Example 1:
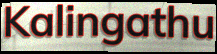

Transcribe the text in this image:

Kalingathu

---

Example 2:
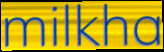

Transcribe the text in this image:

milkha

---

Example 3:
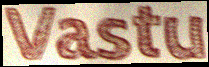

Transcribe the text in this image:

Vastu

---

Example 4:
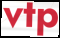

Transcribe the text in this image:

vtp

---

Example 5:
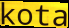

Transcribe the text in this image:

kota